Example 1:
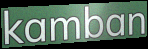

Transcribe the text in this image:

kamban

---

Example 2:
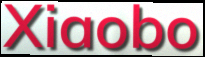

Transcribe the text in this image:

Xiaobo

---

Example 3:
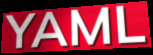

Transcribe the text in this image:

YAML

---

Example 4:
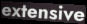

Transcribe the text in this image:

extensive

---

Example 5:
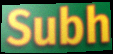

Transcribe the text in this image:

Subh